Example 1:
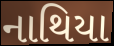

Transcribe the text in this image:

નાથિયા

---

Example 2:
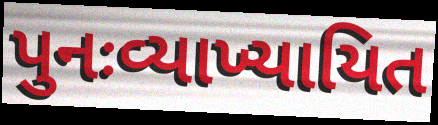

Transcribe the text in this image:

પુનઃવ્યાખ્યાયિત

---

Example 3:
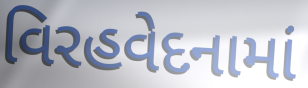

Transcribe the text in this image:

વિરહવેદનામાં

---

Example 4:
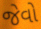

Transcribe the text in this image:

જેવો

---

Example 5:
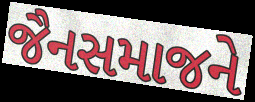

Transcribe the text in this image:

જૈનસમાજને